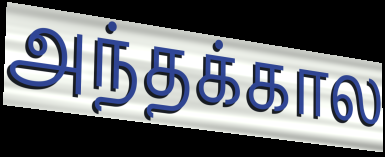
அந்தக்கால